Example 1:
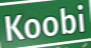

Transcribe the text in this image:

Koobi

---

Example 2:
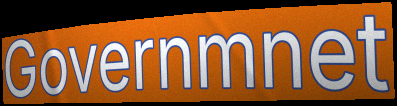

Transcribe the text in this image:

Governmnet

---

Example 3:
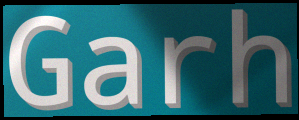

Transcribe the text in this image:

Garh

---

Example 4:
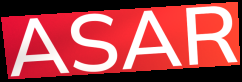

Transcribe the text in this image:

ASAR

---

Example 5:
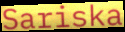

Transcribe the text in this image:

Sariska